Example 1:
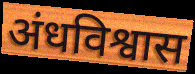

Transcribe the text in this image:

अंधविश्वास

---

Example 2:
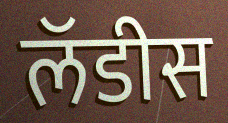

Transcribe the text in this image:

लॅडीस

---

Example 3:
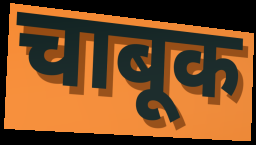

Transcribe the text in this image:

चाबूक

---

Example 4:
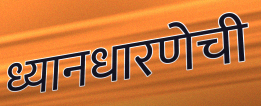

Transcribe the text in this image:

ध्यानधारणेची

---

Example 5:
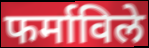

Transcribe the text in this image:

फर्माविले